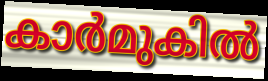
കാർമുകിൽ